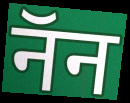
नॅन